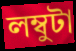
লম্বুটা